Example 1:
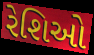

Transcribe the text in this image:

રેશિઓ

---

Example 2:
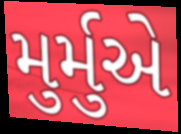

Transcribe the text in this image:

મુર્મુએ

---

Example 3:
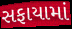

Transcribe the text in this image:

સફાયામાં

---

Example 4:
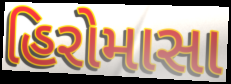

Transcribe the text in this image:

હિરોમાસા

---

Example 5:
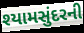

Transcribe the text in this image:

શ્યામસુંદરની